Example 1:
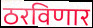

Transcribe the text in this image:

ठरविणार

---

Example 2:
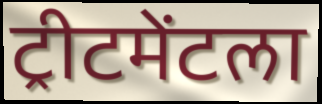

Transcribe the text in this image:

ट्रीटमेंटला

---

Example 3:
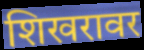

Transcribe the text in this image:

शिखरावर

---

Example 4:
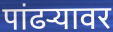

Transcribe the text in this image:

पांढर्‍यावर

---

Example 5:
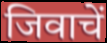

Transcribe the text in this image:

जिवाचें